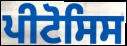
ਪੀਟੋਸਿਸ